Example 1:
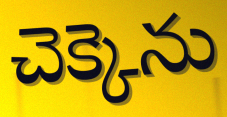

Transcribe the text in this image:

చెక్కెను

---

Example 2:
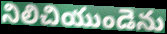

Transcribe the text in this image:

నిలిచియుండెను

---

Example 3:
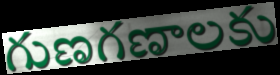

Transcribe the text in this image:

గుణగణాలకు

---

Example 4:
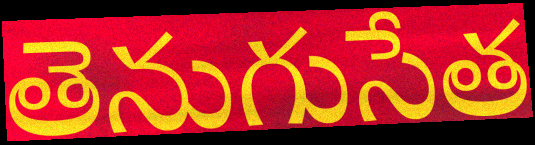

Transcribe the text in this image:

తెనుగుసేత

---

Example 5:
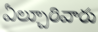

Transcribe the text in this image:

ఏల్చూరివారు